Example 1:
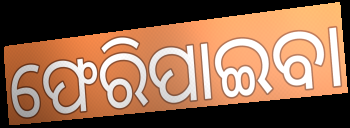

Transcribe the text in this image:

ଫେରିପାଇବା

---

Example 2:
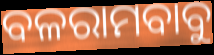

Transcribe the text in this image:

ବଳରାମବାବୁ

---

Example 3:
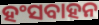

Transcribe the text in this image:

ହଂସବାହନ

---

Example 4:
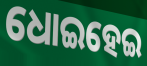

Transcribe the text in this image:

ଧୋଇହେଇ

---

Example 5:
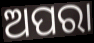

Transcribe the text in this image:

ଅପରା